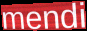
mendi